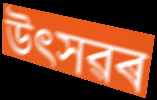
উৎসৱৰ